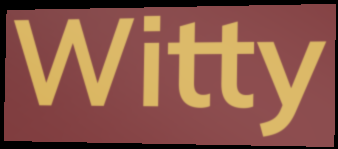
Witty